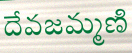
దేవజమ్మణి